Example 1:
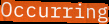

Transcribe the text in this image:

Occurring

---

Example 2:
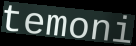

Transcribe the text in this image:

temoni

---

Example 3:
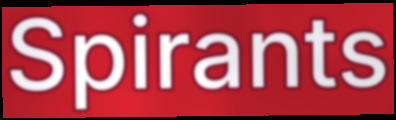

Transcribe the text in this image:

Spirants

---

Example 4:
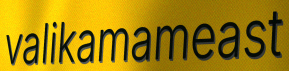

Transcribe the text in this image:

valikamameast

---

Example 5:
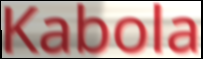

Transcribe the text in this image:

Kabola